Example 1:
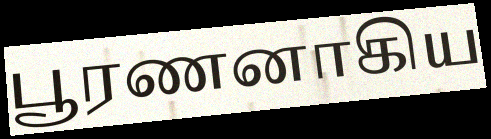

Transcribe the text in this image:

பூரணனாகிய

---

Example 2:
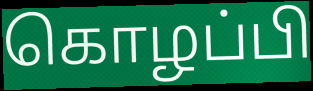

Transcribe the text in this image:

கொழப்பி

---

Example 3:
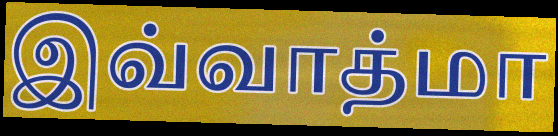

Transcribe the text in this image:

இவ்வாத்மா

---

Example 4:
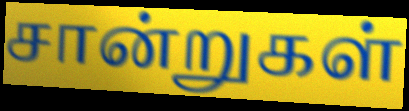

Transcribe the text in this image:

சான்றுகள்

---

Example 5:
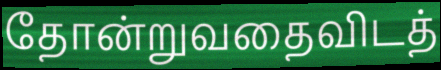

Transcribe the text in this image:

தோன்றுவதைவிடத்